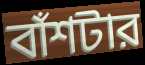
বাঁশটার